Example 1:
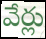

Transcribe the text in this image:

వేర్లు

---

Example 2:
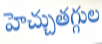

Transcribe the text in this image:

హెచ్చుతగ్గుల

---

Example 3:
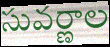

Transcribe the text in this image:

సువర్ణాల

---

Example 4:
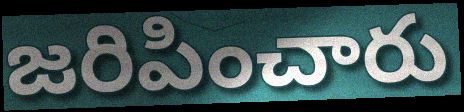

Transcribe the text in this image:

జరిపించారు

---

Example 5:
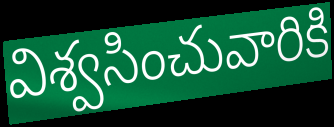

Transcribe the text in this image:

విశ్వసించువారికి